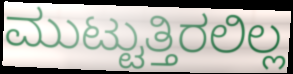
ಮುಟ್ಟುತ್ತಿರಲಿಲ್ಲ